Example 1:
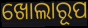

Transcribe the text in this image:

ଖୋଲାରୂପ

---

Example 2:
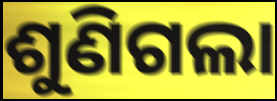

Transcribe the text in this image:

ଶୁଣିଗଲା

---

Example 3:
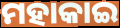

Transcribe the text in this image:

ମହାକାଇ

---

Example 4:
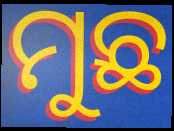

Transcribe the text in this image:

ମୁଛ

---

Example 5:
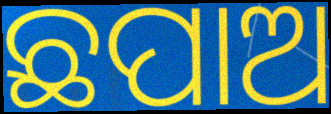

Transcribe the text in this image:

ଛପାଅ